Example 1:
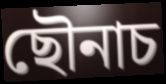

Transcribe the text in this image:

ছৌনাচ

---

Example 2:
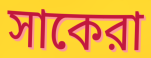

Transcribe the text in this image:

সাকেরা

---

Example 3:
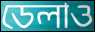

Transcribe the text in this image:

ডেলাও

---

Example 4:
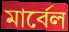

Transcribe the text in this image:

মার্বেল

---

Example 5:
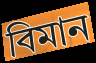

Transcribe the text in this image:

বিমান